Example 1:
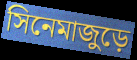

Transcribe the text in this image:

সিনেমাজুড়ে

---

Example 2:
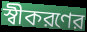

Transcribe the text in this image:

স্বীকরণের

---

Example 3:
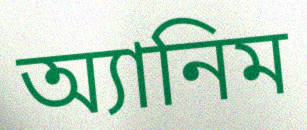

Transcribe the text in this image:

অ্যানিম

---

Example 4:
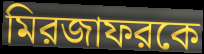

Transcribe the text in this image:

মিরজাফরকে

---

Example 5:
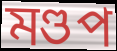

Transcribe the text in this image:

মণ্ডপ